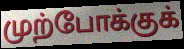
முற்போக்குக்